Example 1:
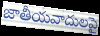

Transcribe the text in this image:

జాతీయవాదులపై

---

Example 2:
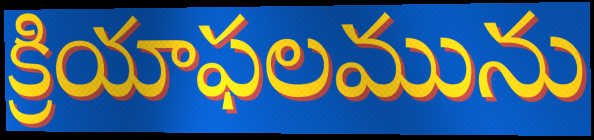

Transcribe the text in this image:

క్రియాఫలమును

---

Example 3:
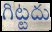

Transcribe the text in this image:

గిట్టదు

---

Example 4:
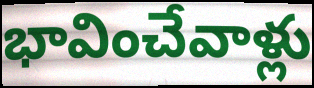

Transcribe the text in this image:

భావించేవాళ్లు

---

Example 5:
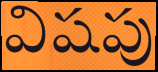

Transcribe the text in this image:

విషపు